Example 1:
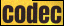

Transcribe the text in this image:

codec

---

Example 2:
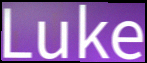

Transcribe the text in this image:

Luke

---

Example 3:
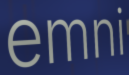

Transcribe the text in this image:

emni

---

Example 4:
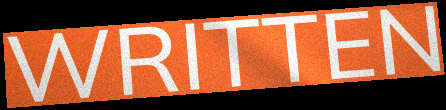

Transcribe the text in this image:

WRITTEN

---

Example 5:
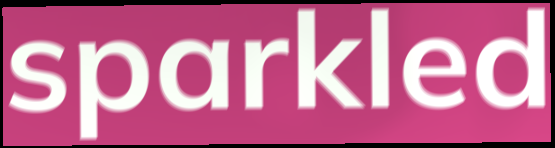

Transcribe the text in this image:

sparkled